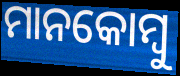
ମାନକୋମ୍ବୁ